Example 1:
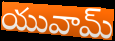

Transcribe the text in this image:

యువామ్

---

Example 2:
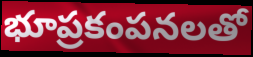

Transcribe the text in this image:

భూప్రకంపనలతో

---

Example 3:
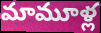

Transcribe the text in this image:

మామూళ్ల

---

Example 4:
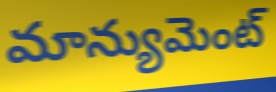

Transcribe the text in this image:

మాన్యుమెంట్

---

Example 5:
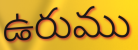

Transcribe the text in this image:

ఉరుము